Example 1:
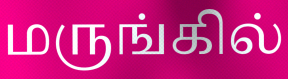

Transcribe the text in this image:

மருங்கில்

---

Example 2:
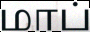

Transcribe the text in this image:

மாப்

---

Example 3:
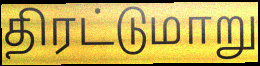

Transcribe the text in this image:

திரட்டுமாறு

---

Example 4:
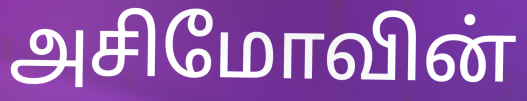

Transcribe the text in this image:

அசிமோவின்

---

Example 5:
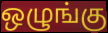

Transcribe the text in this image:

ஒழுங்கு